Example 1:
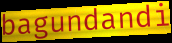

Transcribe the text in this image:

bagundandi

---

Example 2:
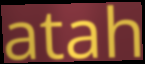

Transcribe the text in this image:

atah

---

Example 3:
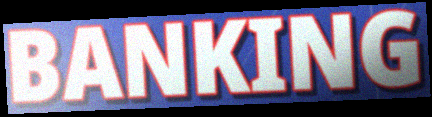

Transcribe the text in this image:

BANKING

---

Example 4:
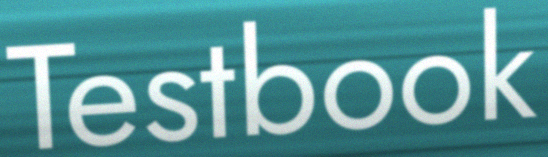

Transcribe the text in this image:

Testbook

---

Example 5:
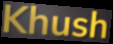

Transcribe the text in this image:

Khush